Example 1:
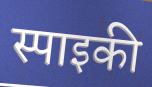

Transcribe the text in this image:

स्पाइकी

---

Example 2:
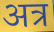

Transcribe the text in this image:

अत्र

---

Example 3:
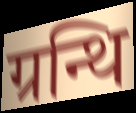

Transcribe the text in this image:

ग्रन्थि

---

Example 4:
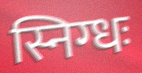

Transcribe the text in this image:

स्निग्धः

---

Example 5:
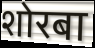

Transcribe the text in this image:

शोरबा